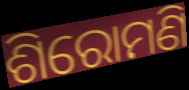
ଶିରୋମଣି